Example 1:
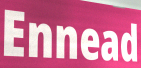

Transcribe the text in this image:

Ennead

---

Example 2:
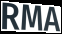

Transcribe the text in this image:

RMA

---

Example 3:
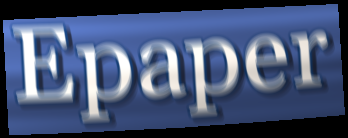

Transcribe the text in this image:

Epaper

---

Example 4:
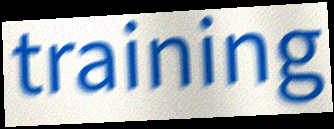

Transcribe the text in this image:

training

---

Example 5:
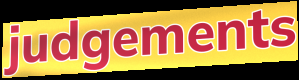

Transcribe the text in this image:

judgements